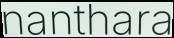
nanthara